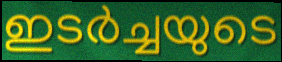
ഇടർച്ചയുടെ